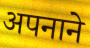
अपनाने